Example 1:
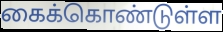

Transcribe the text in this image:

கைக்கொண்டுள்ள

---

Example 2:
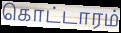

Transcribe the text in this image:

கொட்டாரம்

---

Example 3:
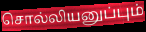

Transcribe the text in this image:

சொல்லியனுப்பும்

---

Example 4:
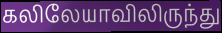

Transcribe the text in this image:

கலிலேயாவிலிருந்து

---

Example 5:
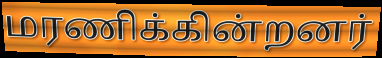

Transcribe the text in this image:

மரணிக்கின்றனர்